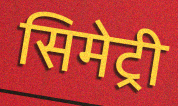
सिमेट्री